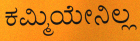
ಕಮ್ಮಿಯೇನಿಲ್ಲ